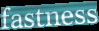
fastness